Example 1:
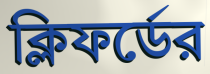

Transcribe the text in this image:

ক্লিফর্ডের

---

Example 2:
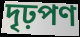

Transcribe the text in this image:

দৃঢ়পণ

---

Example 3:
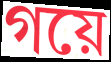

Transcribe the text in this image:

গয়ে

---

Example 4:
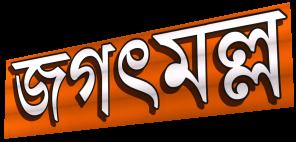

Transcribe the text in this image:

জগৎমল্ল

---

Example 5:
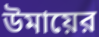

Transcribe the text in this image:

উমায়ের